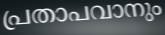
പ്രതാപവാനും